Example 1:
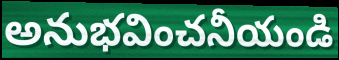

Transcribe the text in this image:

అనుభవించనీయండి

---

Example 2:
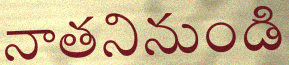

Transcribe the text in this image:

నాతనినుండి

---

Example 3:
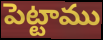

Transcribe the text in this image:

పెట్టాము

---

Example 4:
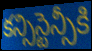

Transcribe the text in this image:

కన్సిస్టెన్సీకి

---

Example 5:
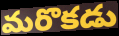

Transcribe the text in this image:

మరొకడు